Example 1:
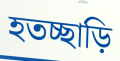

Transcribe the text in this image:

হতচ্ছাড়ি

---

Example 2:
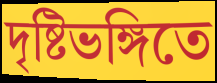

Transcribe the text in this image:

দৃষ্টিভঙ্গিতে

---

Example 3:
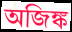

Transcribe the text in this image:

অজিঙ্ক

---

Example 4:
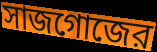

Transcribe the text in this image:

সাজগোজের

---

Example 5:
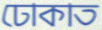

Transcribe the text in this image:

ঢোকাত